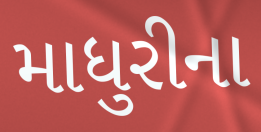
માધુરીના